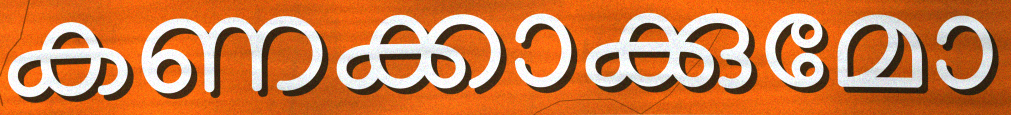
കണക്കാക്കുമോ